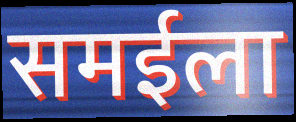
समईला